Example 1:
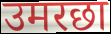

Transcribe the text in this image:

उमरछा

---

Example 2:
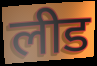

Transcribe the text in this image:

लीड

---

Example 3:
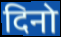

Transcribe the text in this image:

दिनो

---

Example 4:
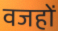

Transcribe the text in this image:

वजहों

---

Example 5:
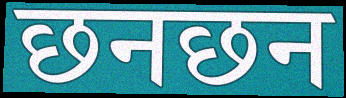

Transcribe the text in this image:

छनछन